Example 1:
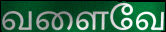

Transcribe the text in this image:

வளைவே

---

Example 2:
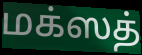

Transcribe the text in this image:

மக்ஸத்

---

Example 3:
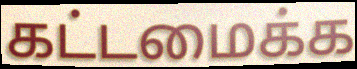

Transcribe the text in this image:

கட்டமைக்க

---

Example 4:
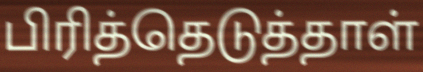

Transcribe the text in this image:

பிரித்தெடுத்தாள்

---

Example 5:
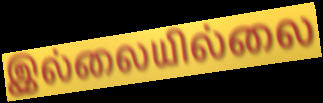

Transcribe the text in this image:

இல்லையில்லை